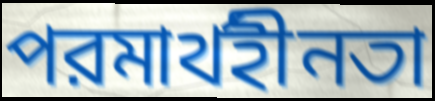
পরমার্থহীনতা